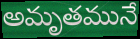
అమృతమునే